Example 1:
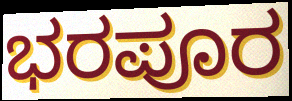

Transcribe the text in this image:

ಭರಪೂರ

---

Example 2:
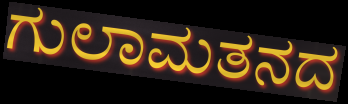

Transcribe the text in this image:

ಗುಲಾಮತನದ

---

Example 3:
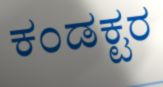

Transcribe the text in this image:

ಕಂಡಕ್ಟರ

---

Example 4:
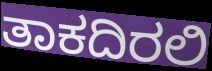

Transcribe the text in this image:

ತಾಕದಿರಲಿ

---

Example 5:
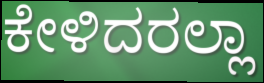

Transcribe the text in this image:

ಕೇಳಿದರಲ್ಲಾ